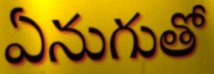
ఏనుగుతో